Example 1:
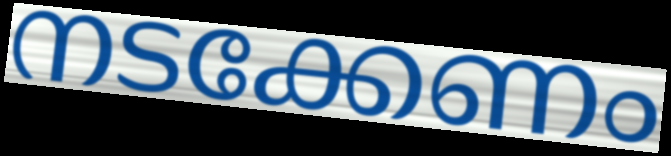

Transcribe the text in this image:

നടക്കേണം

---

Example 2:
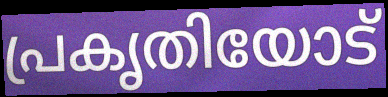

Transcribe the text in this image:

പ്രകൃതിയോട്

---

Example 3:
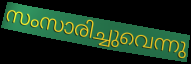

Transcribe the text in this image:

സംസാരിച്ചുവെന്നു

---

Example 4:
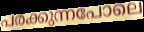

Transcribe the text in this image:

പരക്കുന്നപോലെ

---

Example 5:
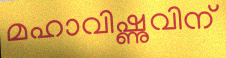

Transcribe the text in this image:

മഹാവിഷ്ണുവിന്